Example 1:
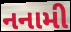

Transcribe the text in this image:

નનામી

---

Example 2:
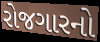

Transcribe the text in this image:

રોજગારનો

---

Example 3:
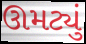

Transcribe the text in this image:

ઊમટ્યું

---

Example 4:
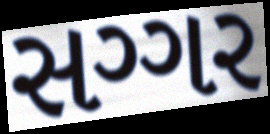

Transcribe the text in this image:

સગ્ગર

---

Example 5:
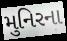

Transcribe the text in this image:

મુનિરના